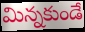
మిన్నకుండే